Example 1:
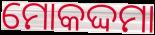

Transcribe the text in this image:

ମୋକଦ୍ଦମା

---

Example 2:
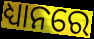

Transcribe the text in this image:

ଧ୍ୟାନରେ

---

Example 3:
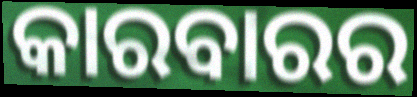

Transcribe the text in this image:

କାରବାରର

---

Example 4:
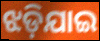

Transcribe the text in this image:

ଝଡ଼ିଯାଇ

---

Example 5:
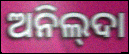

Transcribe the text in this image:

ଅନିଲ୍‌ଦା